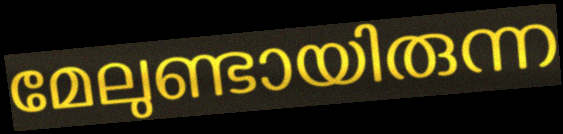
മേലുണ്ടായിരുന്ന